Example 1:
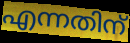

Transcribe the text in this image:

എന്നതിന്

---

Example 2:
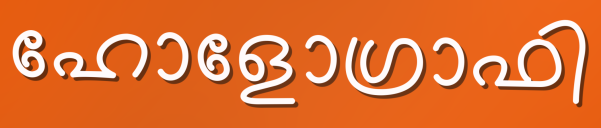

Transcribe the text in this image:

ഹോളോഗ്രാഫി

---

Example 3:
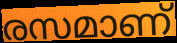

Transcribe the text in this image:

രസമാണ്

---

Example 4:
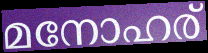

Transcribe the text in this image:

മനോഹര്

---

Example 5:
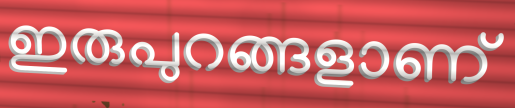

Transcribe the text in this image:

ഇരുപുറങ്ങളാണ്